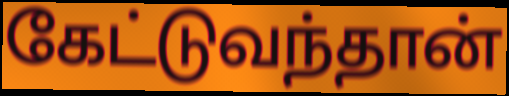
கேட்டுவந்தான்